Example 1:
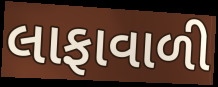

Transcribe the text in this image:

લાફાવાળી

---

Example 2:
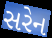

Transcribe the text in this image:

સરેન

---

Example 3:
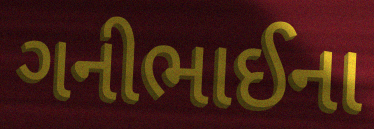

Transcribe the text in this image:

ગનીભાઈના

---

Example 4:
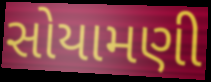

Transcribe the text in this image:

સોયામણી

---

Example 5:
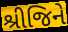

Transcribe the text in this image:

શ્રીજિને